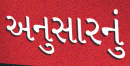
અનુસારનું